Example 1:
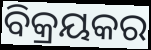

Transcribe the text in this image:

ବିକ୍ରୟକର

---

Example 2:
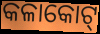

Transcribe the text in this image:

କଳାକୋଟ୍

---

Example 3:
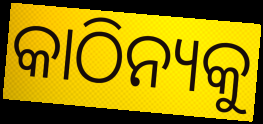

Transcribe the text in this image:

କାଠିନ୍ୟକୁ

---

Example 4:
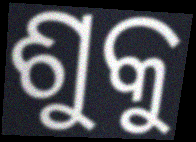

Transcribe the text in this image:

ଶୁକୁ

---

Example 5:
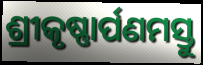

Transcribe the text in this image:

ଶ୍ରୀକୃଷ୍ଣାର୍ପଣମସ୍ତୁ